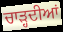
ਚਾੜ੍ਹਦੀਆਂ